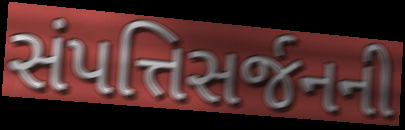
સંપત્તિસર્જનની